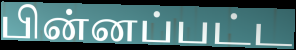
பின்னப்பட்ட